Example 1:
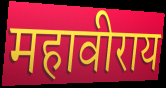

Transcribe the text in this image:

महावीराय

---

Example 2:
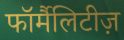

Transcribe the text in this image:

फॉर्मैलिटीज़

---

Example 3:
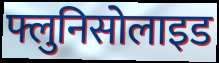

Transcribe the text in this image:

फ्लुनिसोलाइड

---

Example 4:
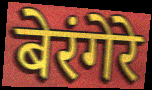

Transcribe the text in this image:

बेरंगेरे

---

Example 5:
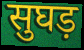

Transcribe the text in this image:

सुघड़